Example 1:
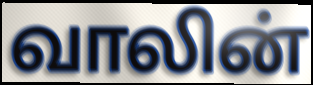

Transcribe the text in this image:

வாலின்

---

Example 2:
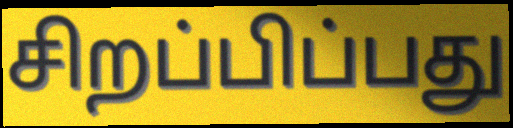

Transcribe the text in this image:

சிறப்பிப்பது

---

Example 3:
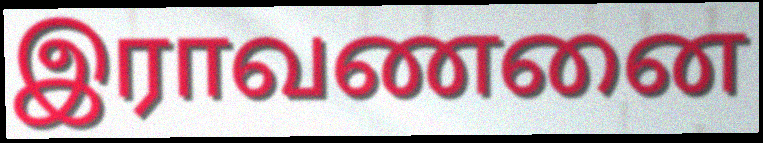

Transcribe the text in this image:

இராவணனை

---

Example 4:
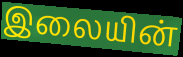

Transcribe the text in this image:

இலையின்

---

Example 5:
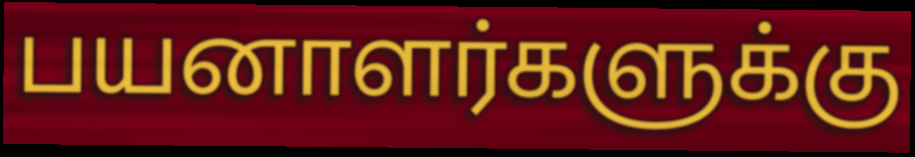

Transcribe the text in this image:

பயனாளர்களுக்கு